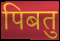
पिबतु